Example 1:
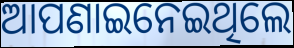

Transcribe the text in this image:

ଆପଣାଇନେଇଥିଲେ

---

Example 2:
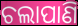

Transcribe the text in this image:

ଚଲାପାଣି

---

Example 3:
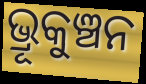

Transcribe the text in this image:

ଭ୍ରୂକୁଞ୍ଚନ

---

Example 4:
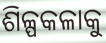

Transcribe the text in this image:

ଶିଳ୍ପକଳାକୁ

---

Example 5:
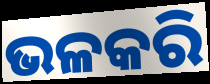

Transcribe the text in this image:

ଭଳକରି